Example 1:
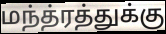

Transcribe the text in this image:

மந்த்ரத்துக்கு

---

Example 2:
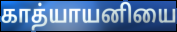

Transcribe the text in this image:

காத்யாயனியை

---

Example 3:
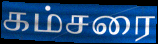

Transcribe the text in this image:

கம்சரை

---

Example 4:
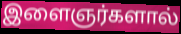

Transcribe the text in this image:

இளைஞர்களால்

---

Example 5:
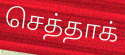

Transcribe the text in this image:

செத்தாக்